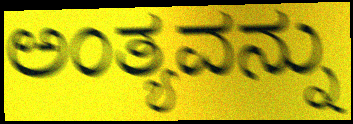
ಅಂತ್ಯವನ್ನು